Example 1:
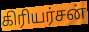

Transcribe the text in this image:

கிரியர்சன்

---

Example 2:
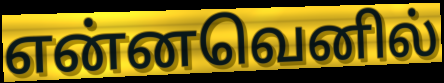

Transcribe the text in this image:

என்னவெனில்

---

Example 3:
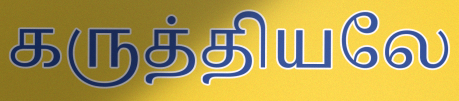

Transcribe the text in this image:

கருத்தியலே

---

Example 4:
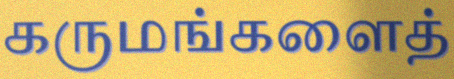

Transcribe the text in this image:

கருமங்களைத்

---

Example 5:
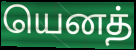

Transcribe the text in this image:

யெனத்